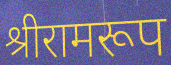
श्रीरामरूप